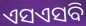
ଏସଏସବି